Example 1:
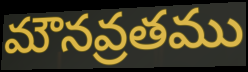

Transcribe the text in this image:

మౌనవ్రతము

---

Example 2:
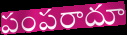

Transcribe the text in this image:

పంపరాదూ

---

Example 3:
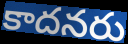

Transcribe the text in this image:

కాదనరు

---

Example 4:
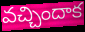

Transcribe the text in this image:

వచ్చిందాక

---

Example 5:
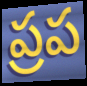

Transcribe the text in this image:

ప్రప